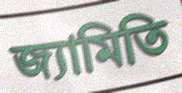
জ্যামিতি